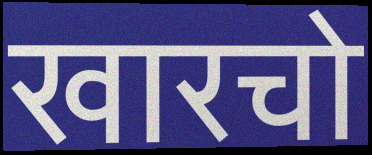
खारचो